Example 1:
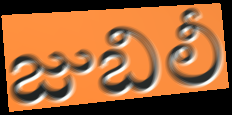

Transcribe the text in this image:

జుబిలీ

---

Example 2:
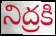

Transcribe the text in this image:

నిద్రకి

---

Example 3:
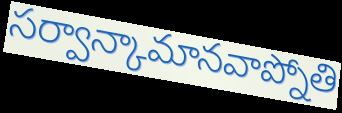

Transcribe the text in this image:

సర్వాన్కామానవాప్నోతి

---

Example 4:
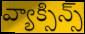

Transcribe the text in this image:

వ్యాక్సిన్స్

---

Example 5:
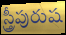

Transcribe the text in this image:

స్త్రీపురుష